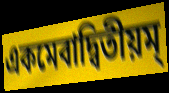
একমেবাদ্বিতীয়ম্